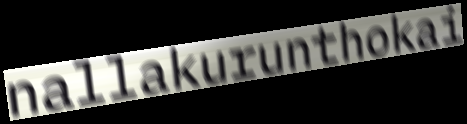
nallakurunthokai